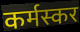
कर्मस्कर